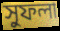
সুফলা